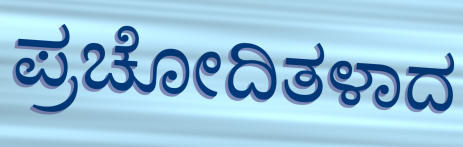
ಪ್ರಚೋದಿತಳಾದ